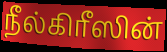
நீல்கிரீஸின்